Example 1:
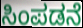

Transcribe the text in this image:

ಸಿಂಪಡನೆ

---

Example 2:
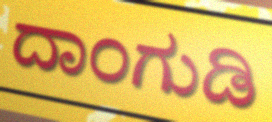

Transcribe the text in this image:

ದಾಂಗುಡಿ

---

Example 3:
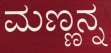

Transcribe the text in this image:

ಮಣ್ಣನ್ನ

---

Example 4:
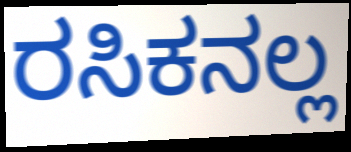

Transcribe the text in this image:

ರಸಿಕನಲ್ಲ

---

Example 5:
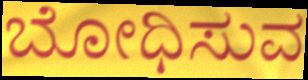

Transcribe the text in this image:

ಬೋಧಿಸುವ